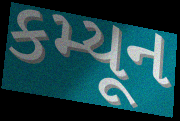
કમ્યૂન